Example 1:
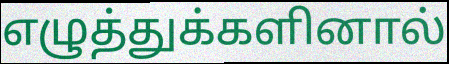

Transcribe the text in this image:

எழுத்துக்களினால்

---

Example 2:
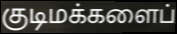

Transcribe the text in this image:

குடிமக்களைப்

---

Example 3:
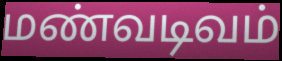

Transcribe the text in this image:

மண்வடிவம்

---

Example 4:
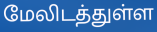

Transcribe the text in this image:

மேலிடத்துள்ள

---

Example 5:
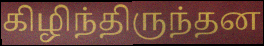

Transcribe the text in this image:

கிழிந்திருந்தன